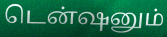
டென்ஷனும்